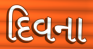
દિવના